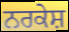
ਨਰਕੇਸ਼